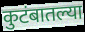
कुटंबातल्या